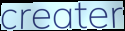
creater